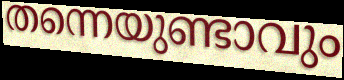
തന്നെയുണ്ടാവും